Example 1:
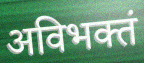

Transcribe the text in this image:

अविभक्तं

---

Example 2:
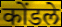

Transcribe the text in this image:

कोंडले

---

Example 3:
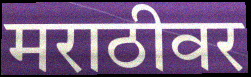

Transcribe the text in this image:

मराठीवर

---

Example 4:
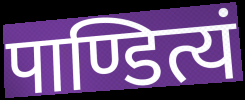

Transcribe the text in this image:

पाण्डित्यं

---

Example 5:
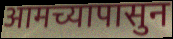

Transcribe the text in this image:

आमच्यापासुन